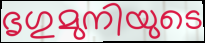
ഭൃഗുമുനിയുടെ